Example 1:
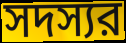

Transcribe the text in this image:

সদস্যর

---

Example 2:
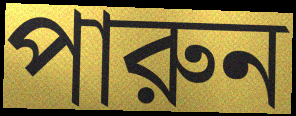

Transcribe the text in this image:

পারুন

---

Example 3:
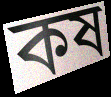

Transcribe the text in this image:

কষ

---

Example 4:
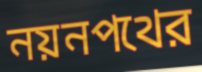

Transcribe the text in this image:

নয়নপথের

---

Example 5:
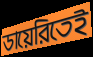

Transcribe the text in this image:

ডায়েরিতেই